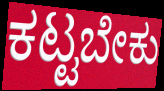
ಕಟ್ಟಬೇಕು